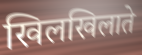
खिलखिलाते